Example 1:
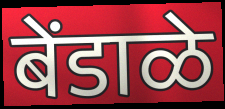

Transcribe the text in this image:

बेंडाळे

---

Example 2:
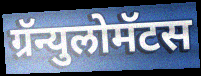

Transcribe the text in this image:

ग्रॅन्युलोमॅटस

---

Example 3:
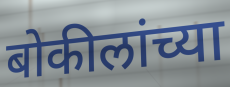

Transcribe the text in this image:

बोकीलांच्या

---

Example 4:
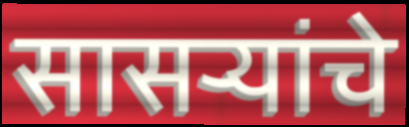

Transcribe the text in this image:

सासर्‍यांचे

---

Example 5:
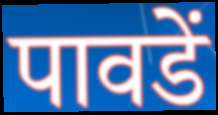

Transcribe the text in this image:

पावडें